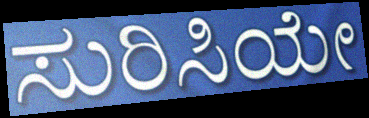
ಸುರಿಸಿಯೇ